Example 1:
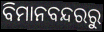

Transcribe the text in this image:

ବିମାନବନ୍ଦରରୁ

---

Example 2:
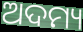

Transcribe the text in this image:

ଅଦମ୍ୟ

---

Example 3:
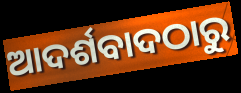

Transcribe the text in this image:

ଆଦର୍ଶବାଦଠାରୁ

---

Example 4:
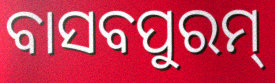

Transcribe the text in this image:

ବାସବପୁରମ୍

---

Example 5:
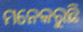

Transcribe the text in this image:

ମନେକରୁଛି